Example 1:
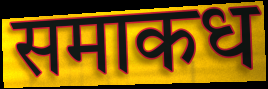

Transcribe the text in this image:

समाकध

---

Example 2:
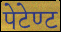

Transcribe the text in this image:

पेटेण्ट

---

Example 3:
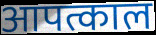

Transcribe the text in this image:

आपत्काल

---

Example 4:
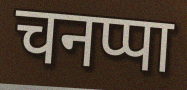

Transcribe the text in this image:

चनप्पा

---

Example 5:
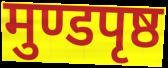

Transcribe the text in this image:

मुण्डपृष्ठ